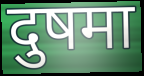
दुषमा